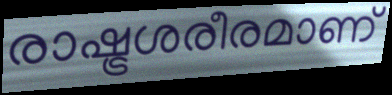
രാഷ്ട്രശരീരമാണ്